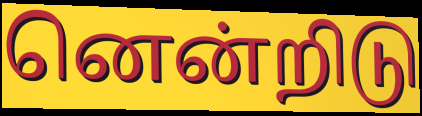
னென்றிடு